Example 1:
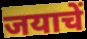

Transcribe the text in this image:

जयाचें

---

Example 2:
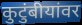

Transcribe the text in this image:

कुटुंबीयांवर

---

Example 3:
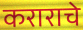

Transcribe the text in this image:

कराराचे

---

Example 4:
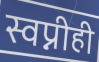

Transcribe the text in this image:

स्वप्नीही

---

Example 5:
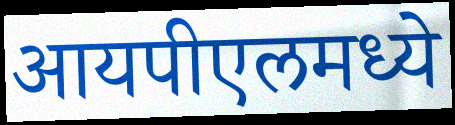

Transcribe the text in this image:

आयपीएलमध्ये